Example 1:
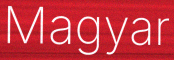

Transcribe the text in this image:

Magyar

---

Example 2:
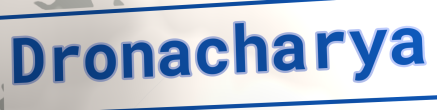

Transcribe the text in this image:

Dronacharya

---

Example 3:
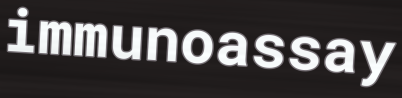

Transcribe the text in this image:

immunoassay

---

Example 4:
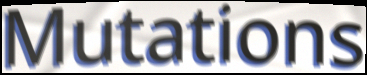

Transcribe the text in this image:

Mutations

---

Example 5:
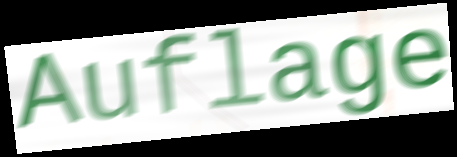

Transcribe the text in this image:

Auflage